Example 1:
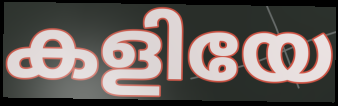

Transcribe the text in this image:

കളിയേ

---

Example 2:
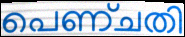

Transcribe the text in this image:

പെണ്ചതി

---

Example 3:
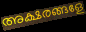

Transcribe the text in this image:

അക്ഷരങ്ങളേ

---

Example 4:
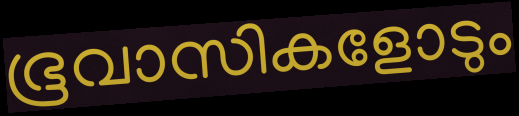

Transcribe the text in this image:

ഭൂവാസികളോടും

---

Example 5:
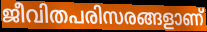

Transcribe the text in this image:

ജീവിതപരിസരങ്ങളാണ്